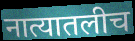
नात्यातलीच